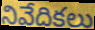
నివేదికలు